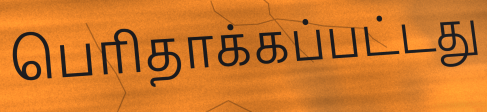
பெரிதாக்கப்பட்டது